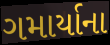
ગમાર્યાના